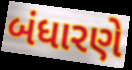
બંધારણે